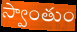
స్వాంతుం